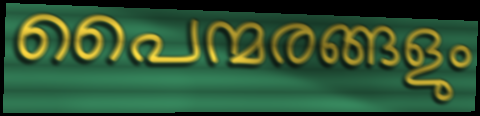
പൈന്മരങ്ങളും